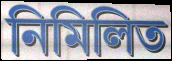
নিমিলিত